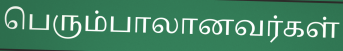
பெரும்பாலானவர்கள்